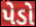
પેડો